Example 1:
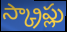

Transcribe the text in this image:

స్క్రాప్లు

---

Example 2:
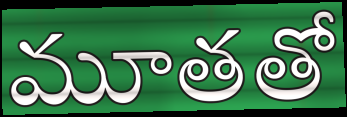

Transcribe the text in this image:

మూతతో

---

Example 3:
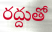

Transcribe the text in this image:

రద్దుతో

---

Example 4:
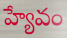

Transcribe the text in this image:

హ్యేవం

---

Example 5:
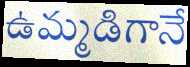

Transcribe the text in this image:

ఉమ్మడిగానే